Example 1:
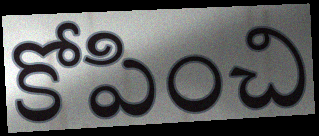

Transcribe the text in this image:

కోపించి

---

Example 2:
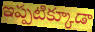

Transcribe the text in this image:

ఇప్పటిక్కూడా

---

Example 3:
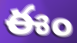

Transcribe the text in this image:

ఈం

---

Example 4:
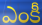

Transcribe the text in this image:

ఎంకీ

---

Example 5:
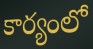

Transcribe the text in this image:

కార్యంలో